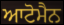
ਆਟੋਮੈਨ